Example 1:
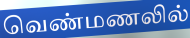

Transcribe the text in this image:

வெண்மணலில்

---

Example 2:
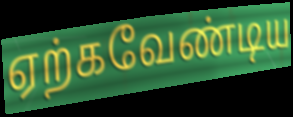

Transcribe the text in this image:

ஏற்கவேண்டிய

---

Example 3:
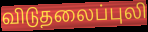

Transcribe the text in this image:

விடுதலைப்புலி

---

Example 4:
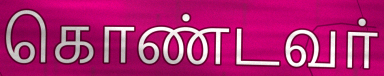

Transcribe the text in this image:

கொண்டவர்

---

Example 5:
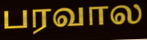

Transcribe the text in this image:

பரவால